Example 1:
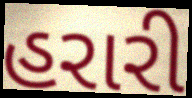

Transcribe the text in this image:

હરારી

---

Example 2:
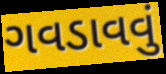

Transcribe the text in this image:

ગવડાવવું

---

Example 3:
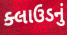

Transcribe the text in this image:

ક્લાઉડનું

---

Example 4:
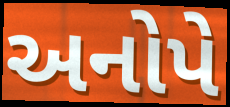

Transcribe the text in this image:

અનોપે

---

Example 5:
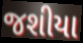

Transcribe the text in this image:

જશીયા